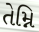
તેમ્નિ